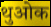
थुओक